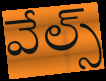
వేల్స్